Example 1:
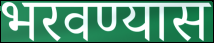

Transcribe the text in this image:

भरवण्यास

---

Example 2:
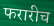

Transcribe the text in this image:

फरारीच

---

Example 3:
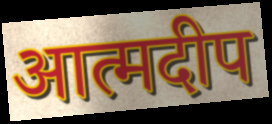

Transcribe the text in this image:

आत्मदीप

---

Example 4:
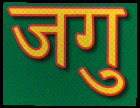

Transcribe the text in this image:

जगु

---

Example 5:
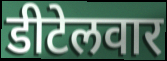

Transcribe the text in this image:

डीटेलवार